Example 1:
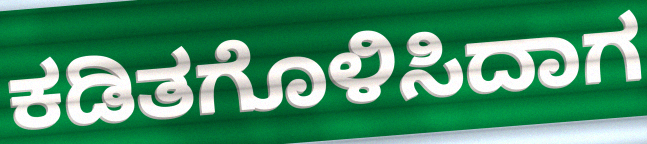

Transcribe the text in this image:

ಕಡಿತಗೊಳಿಸಿದಾಗ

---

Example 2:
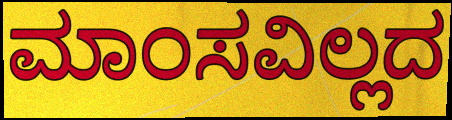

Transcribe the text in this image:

ಮಾಂಸವಿಲ್ಲದ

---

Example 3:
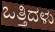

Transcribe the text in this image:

ಒತ್ತಿದಳು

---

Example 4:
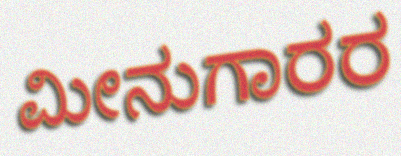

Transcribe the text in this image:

ಮೀನುಗಾರರ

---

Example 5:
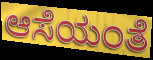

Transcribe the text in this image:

ಆಸೆಯಂತೆ